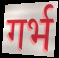
गर्भ